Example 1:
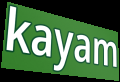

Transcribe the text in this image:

kayam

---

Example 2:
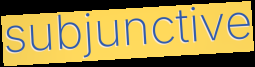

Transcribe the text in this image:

subjunctive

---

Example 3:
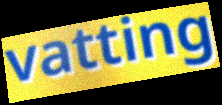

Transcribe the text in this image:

vatting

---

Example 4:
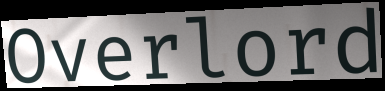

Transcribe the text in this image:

Overlord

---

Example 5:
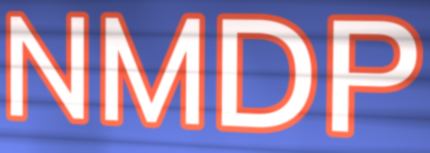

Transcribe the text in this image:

NMDP